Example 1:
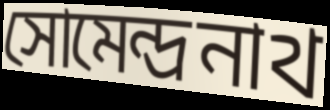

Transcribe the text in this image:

সোমেন্দ্রনাথ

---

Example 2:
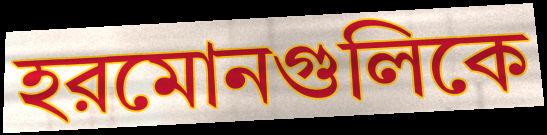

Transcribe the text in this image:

হরমোনগুলিকে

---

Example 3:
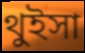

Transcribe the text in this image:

থুইসা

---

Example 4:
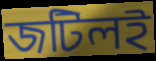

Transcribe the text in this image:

জটিলই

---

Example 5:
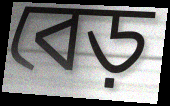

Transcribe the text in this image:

বেড়